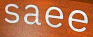
saee